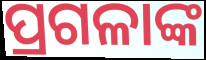
ପ୍ରଗଳାଙ୍କ